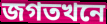
জগতখনে